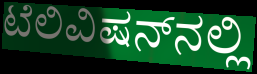
ಟೆಲಿವಿಷನ್‌ನಲ್ಲಿ